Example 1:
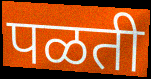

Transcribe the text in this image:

पळती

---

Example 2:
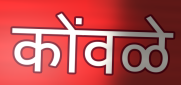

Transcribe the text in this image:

कोंवळे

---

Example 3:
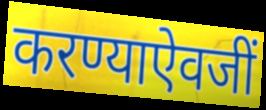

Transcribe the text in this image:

करण्याऐवजीं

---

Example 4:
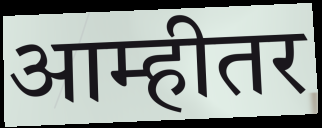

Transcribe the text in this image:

आम्हीतर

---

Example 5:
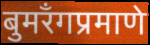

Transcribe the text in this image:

बुमरँगप्रमाणे